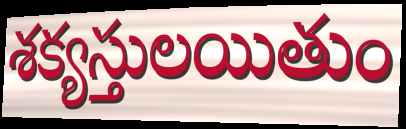
శక్యస్తులయితుం